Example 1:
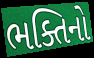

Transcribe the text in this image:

ભક્તિનો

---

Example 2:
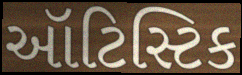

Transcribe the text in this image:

ઑટિસ્ટિક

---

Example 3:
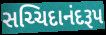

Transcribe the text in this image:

સચ્ચિદાનંદરૂપ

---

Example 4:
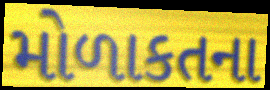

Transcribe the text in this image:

મોળાકતના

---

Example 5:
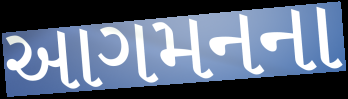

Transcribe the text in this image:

આગમનના